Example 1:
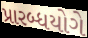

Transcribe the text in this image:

પ્રારબ્ધયોગે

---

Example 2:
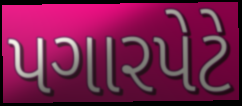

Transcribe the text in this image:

પગારપેટે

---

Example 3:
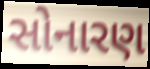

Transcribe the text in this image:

સોનારણ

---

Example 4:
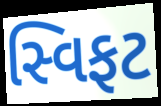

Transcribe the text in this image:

સ્વિફટ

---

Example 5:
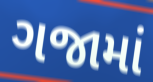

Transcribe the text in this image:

ગજામાં